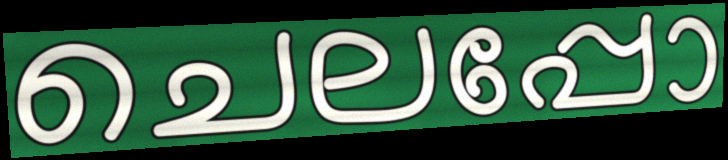
ചെലപ്പോ